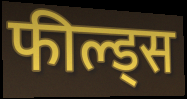
फील्ड्स